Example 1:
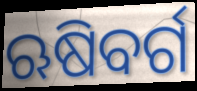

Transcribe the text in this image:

ଋଷିବର୍ଗ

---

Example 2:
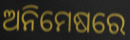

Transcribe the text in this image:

ଅନିମେଷରେ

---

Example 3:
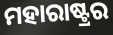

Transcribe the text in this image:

ମହାରାଷ୍ଟ୍ରର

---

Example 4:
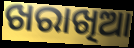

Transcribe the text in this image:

ଖରାଖିଆ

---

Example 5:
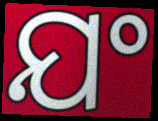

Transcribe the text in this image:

ଯଂ